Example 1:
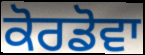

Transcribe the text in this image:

ਕੋਰਡੋਵਾ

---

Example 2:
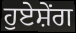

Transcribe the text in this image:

ਹੁਏਸ਼ੇਂਗ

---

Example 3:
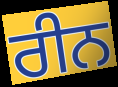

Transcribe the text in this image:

ਰੀਨ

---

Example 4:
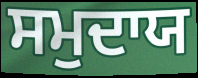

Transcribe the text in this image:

ਸਮੁਦਾਯ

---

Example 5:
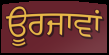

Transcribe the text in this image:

ਊਰਜਾਵਾਂ